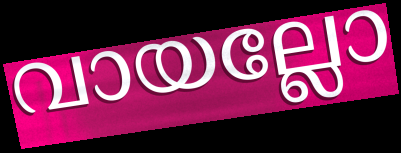
വായല്ലോ